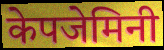
केपजेमिनी